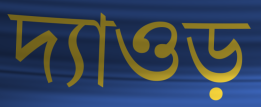
দ্যাওড়